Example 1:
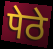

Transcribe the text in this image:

पेठे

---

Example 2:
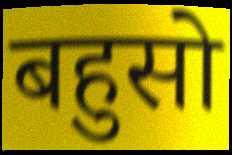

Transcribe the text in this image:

बहुसो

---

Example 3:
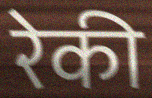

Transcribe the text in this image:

रेकी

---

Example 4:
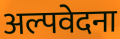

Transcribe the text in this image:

अल्पवेदना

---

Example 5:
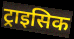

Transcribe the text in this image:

ट्राइसिक